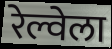
रेल्वेला